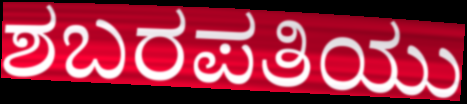
ಶಬರಪತಿಯು